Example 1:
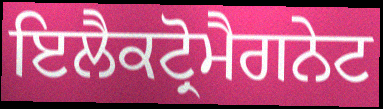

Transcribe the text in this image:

ਇਲੈਕਟ੍ਰੋਮੈਗਨੇਟ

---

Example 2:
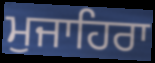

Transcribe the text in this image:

ਮੁਜਾਹਿਰਾ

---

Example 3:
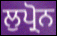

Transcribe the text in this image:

ਲੁਪ੍ਰੋਨ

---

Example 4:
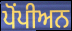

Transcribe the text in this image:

ਪੋਂਪੀਅਨ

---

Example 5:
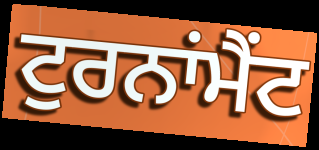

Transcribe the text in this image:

ਟੁਰਨਾਂਮੈਂਟ